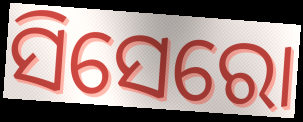
ସିସେରୋ